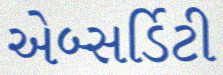
એબ્સર્ડિટી